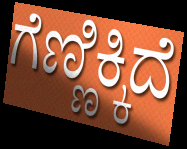
ಗೆಣ್ಣಿಕ್ಕಿದೆ